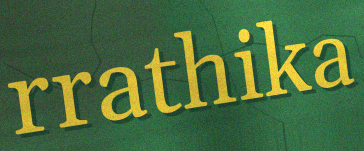
rrathika